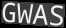
GWAS